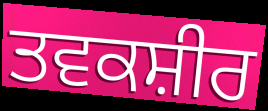
ਤਵਕਸ਼ੀਰ